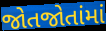
જોતજોતાંમાં